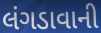
લંગડાવાની